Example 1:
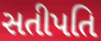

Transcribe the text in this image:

સતીપતિ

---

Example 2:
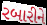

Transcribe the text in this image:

રબારીને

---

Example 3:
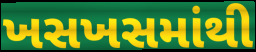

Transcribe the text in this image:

ખસખસમાંથી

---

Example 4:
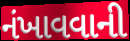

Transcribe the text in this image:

નંખાવવાની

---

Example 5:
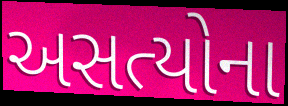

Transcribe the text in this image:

અસત્યોના